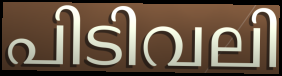
പിടിവലി